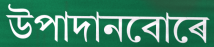
উপাদানবোৰে